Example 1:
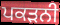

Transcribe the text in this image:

ਪਕੜਨੀ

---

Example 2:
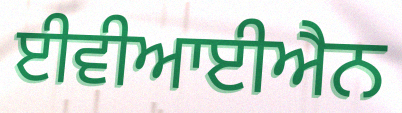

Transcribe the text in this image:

ਈਵੀਆਈਐਨ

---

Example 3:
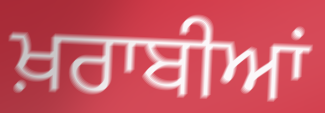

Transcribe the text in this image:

ਖ਼ਰਾਬੀਆਂ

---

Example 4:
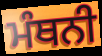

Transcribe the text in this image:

ਮੰਥਨੀ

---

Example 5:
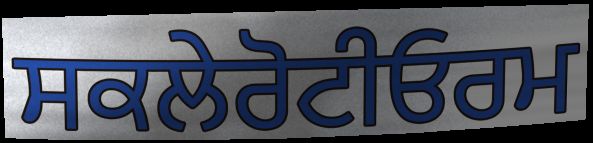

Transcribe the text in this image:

ਸਕਲੇਰੋਟੀਓਰਮ